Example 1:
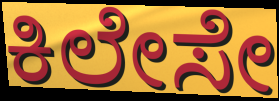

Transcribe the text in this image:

ಕಿಲೇಸೇ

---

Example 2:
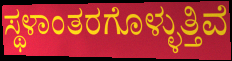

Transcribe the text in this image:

ಸ್ಥಳಾಂತರಗೊಳ್ಳುತ್ತಿವೆ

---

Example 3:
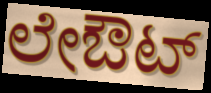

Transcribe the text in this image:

ಲೇಔಟ್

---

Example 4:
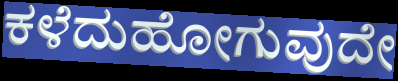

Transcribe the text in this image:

ಕಳೆದುಹೋಗುವುದೇ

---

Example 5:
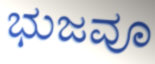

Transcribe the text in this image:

ಭುಜವೂ